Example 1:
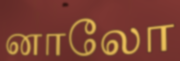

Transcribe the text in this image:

னாலோ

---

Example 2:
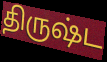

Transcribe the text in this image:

திருஷ்ட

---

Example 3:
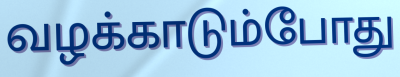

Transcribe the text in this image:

வழக்காடும்போது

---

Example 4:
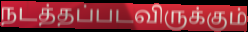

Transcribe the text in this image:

நடத்தப்படவிருக்கும்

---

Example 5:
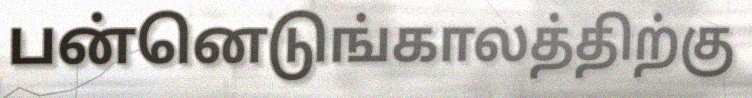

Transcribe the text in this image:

பன்னெடுங்காலத்திற்கு